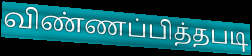
விண்ணப்பித்தபடி